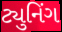
ટ્યુનિંગ